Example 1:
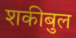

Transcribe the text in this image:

शकीबुल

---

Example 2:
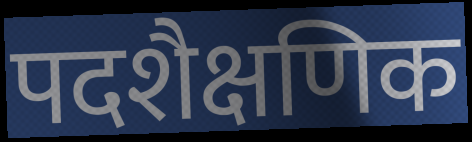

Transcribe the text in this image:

पदशैक्षणिक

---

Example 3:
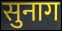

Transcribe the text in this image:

सुनाग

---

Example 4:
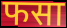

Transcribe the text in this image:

फसा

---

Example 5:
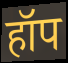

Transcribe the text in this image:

हॉप